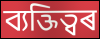
ব্যক্তিত্বৰ